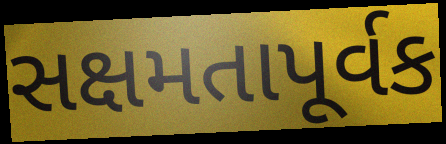
સક્ષમતાપૂર્વક